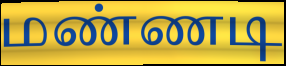
மண்ணடி